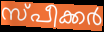
സ്പീക്കർ